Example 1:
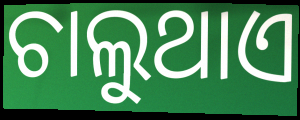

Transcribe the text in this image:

ଚାଲୁଥାଏ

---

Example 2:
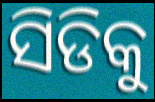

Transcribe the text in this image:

ସିଡିକୁ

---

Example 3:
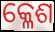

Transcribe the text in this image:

କ୍ଳେଶ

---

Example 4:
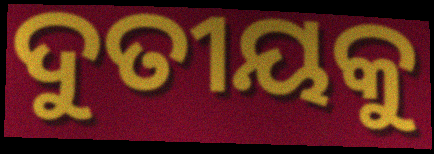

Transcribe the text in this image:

ଦୁତୀୟକୁ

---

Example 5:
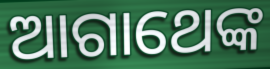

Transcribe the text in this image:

ଆଗାଥେଙ୍କ